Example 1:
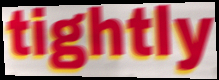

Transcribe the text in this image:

tightly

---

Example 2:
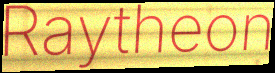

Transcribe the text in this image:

Raytheon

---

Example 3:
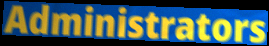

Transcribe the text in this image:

Administrators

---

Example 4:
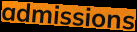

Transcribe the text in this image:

admissions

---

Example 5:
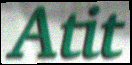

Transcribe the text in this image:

Atit